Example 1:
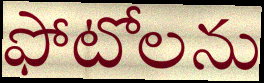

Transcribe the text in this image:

ఫోటోలను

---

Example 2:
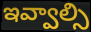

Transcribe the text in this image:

ఇవ్వాల్సి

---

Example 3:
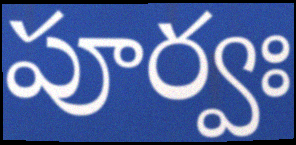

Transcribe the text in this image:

పూర్వః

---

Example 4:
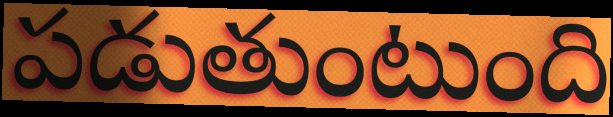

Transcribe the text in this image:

పడుతుంటుంది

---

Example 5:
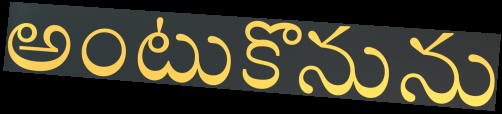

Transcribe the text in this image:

అంటుకొనును